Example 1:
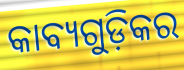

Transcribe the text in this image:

କାବ୍ୟଗୁଡ଼ିକର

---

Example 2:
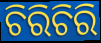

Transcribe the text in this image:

ଚିରିଚିରି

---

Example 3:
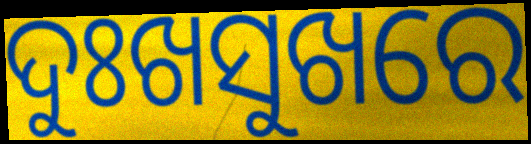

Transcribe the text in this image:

ଦୁଃଖସୁଖରେ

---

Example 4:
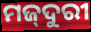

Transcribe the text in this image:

ମଜ୍‌ଦୁରୀ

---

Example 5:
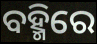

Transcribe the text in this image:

ବହ୍ମିରେ